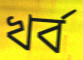
খৰ্ব